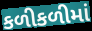
કળીકળીમાં